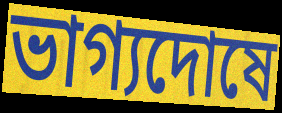
ভাগ্যদোষে